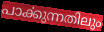
പാൎക്കുന്നതിലും